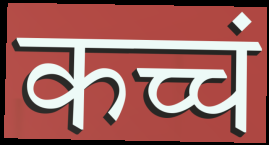
कच्चं